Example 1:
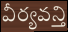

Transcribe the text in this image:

వీర్యవన్తి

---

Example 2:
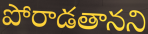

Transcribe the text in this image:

పోరాడతానని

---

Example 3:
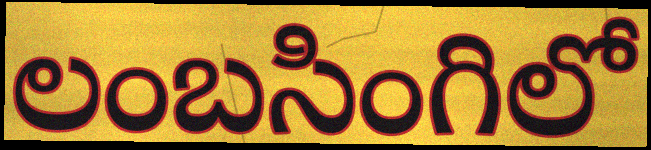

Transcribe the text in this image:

లంబసింగిలో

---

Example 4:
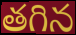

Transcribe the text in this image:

తగిన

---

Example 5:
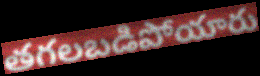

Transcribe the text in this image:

తగలబడిపోయారు